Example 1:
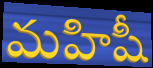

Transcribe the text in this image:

మహిషీ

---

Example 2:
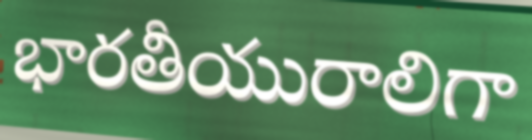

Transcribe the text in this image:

భారతీయురాలిగా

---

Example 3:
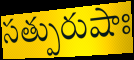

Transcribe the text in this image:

సత్పురుషాః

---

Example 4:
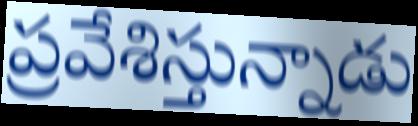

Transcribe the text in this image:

ప్రవేశిస్తున్నాడు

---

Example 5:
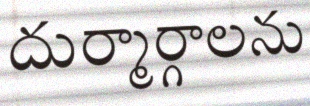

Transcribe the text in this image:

దుర్మార్గాలను